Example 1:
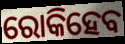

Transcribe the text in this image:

ରୋକିହେବ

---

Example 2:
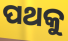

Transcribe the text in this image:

ପଥକୁ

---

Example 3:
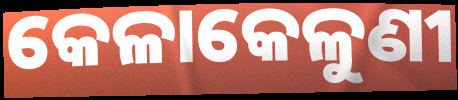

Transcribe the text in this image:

କେଳାକେଳୁଣୀ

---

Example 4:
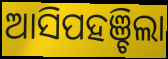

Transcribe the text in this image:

ଆସିପହଞ୍ଚିଲା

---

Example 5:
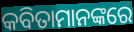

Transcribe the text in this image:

କବିତାମାନଙ୍କରେ